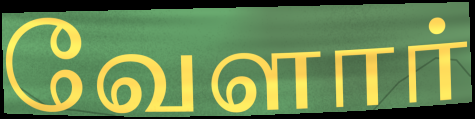
வேளார்